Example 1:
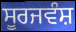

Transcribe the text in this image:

ਸੂਰਜਵੰਸ਼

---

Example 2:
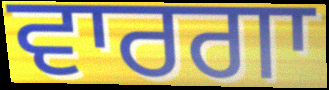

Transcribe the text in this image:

ਵਾਰਗਾ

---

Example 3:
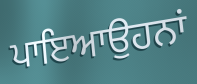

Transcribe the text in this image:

ਪਾਇਆਉਹਨਾਂ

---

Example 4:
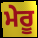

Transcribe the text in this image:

ਮੇਰੂ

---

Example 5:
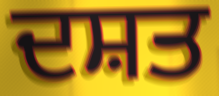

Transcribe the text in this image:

ਦਸ਼ਤ